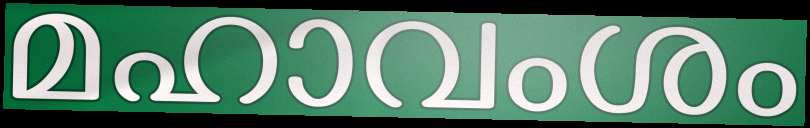
മഹാവംശം